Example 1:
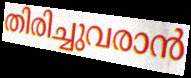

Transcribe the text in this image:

തിരിച്ചുവരാൻ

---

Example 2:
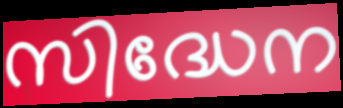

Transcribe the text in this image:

സിദ്ധേന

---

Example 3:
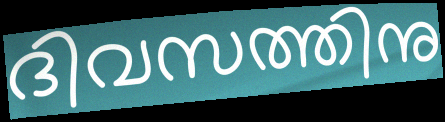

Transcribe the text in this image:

ദിവസത്തിനു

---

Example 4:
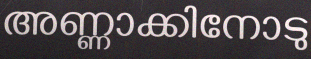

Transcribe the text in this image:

അണ്ണാക്കിനോടു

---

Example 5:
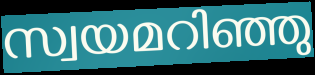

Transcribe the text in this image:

സ്വയമറിഞ്ഞു